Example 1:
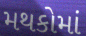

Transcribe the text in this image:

મથકોમાં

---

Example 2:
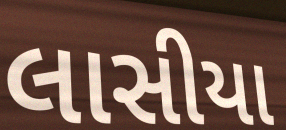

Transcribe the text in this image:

લાસીયા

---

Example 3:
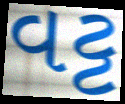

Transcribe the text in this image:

વટ્ટ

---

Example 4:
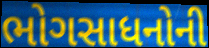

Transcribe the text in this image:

ભોગસાધનોની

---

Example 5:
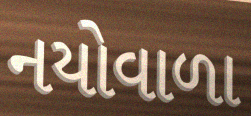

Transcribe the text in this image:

નયોવાળા